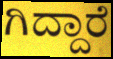
ಗಿದ್ದಾರೆ